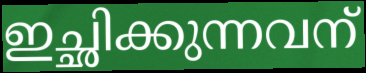
ഇച്ഛിക്കുന്നവന്